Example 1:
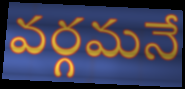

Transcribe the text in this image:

వర్గమనే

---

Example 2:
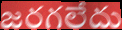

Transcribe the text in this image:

జరగలేదు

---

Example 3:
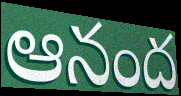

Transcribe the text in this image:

ఆనంద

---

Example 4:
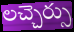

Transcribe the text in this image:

లచ్చెర్సు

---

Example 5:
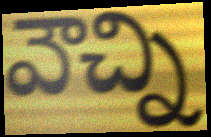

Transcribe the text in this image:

వౌచ్ని